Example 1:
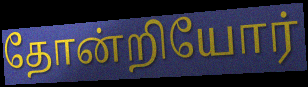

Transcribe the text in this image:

தோன்றியோர்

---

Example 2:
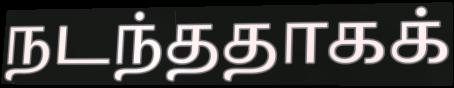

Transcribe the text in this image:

நடந்ததாகக்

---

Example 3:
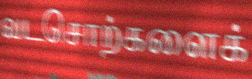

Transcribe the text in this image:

வடசொற்களைக்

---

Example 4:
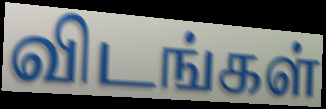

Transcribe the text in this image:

விடங்கள்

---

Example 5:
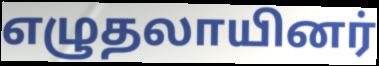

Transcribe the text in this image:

எழுதலாயினர்